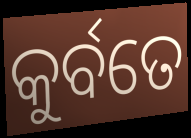
କୁର୍ବତେ